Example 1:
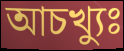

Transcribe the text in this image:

আচখ্যুঃ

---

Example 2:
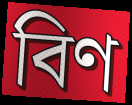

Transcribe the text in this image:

বিণ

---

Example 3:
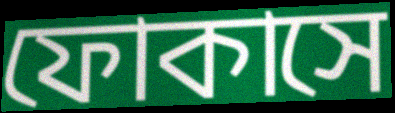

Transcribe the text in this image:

ফোকাসে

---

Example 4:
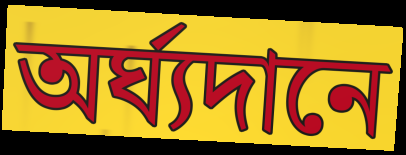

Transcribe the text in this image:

অর্ঘ্যদানে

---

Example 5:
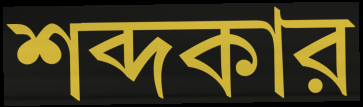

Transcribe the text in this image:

শব্দকার